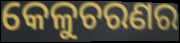
କେଳୁଚରଣର